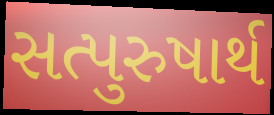
સત્પુરુષાર્થ